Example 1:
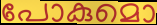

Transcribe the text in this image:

പോകുമൊ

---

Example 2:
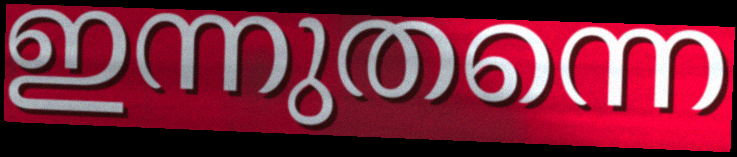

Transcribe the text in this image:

ഇന്നുതന്നെ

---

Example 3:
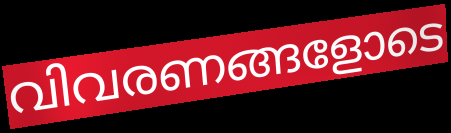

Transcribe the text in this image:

വിവരണങ്ങളോടെ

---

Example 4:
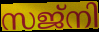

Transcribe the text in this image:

സജ്നി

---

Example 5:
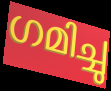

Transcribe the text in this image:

ഗമിച്ചു